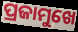
ପ୍ରଜାମୁଖେ